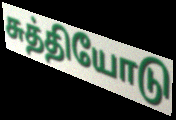
சுத்தியோடு